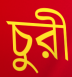
চুরী